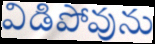
విడిపోవును